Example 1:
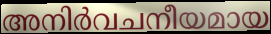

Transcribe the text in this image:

അനിർവചനീയമായ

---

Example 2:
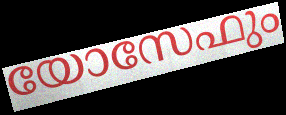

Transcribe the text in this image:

യോസേഫും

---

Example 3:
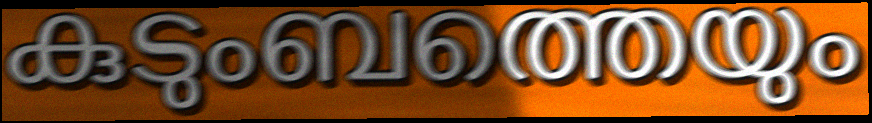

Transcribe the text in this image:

കുടുംബത്തെയും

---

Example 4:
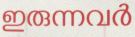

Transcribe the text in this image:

ഇരുന്നവർ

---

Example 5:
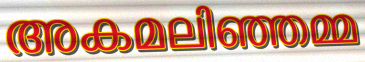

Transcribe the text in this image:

അകമലിഞ്ഞമ്മ